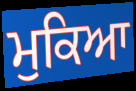
ਮੁਕਿਆ